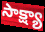
సాక్ష్యా